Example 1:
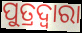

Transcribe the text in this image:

ପୁତ୍ରଦ୍ୱାରା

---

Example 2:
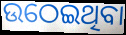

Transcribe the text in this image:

ଉଠେଇଥିବା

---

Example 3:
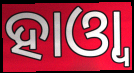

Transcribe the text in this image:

ହାଓ୍ୱା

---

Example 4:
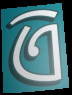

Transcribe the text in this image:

ଏି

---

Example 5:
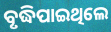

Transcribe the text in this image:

ବୃଦ୍ଧିପାଇଥିଲେ